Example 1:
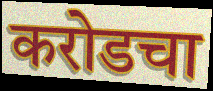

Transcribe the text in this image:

करोडचा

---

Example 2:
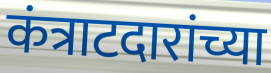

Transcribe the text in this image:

कंत्राटदारांच्या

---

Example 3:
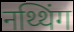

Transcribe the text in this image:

नथ्थिंग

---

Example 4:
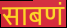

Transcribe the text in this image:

साबणं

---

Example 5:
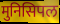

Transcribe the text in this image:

मुनिसिपल